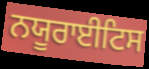
ਨਯੂਰਾਈਟਿਸ